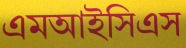
এমআইসিএস